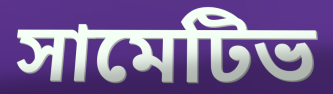
সামেটিভ